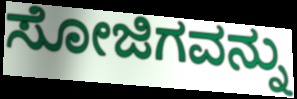
ಸೋಜಿಗವನ್ನು